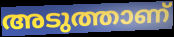
അടുത്താണ്